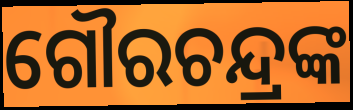
ଗୌରଚନ୍ଦ୍ରଙ୍କ